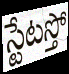
స్టేటస్తో